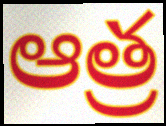
ఆత్ర